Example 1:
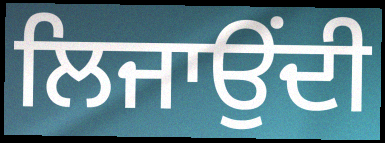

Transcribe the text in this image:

ਲਿਜਾਉਂਦੀ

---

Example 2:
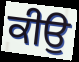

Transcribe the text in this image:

ਕੀਉ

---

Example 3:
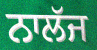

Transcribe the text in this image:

ਨਾਲੱਜ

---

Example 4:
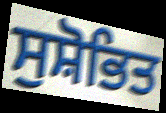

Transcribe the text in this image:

ਸੁਸ਼ੋਭਿਤ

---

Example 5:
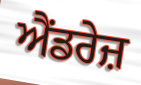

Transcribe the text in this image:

ਐਂਡਰੇਜ਼